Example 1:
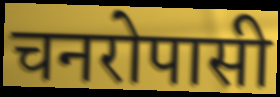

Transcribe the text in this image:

चनरोपासी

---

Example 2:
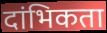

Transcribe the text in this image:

दांभिकता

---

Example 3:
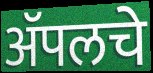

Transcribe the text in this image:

ॲपलचे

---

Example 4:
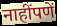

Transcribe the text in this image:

नाहींपणें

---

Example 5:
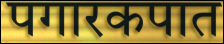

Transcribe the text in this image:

पगारकपात